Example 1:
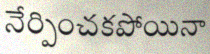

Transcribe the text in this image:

నేర్పించకపోయినా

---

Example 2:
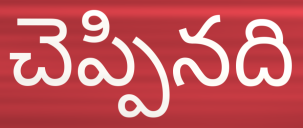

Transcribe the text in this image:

చెప్పినది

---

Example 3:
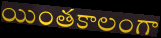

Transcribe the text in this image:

యింతకాలంగా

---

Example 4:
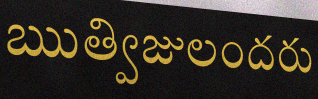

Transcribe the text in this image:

ఋత్విజులందరు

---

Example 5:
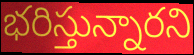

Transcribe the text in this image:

భరిస్తున్నారని